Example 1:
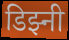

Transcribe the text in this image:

डिझ्नी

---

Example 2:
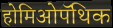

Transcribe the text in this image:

होमिओपॅथिक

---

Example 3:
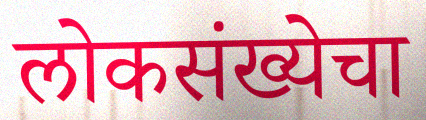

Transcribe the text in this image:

लोकसंख्येचा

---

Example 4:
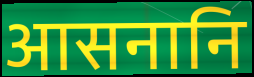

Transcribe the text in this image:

आसनानि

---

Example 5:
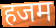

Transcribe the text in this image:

हजम